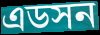
এডসন